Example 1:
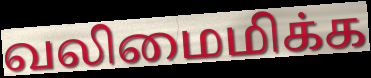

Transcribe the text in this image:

வலிமைமிக்க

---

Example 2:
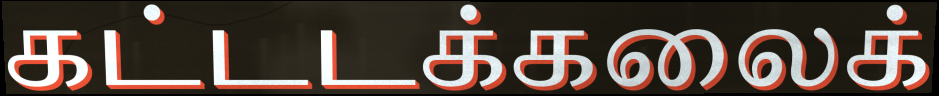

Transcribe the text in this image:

கட்டடக்கலைக்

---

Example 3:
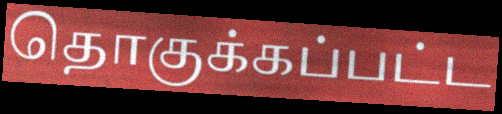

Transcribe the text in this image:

தொகுக்கப்பட்ட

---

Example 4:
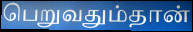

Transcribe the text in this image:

பெறுவதும்தான்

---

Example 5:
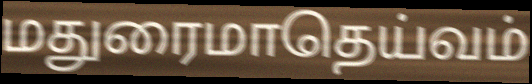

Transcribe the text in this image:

மதுரைமாதெய்வம்